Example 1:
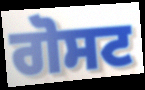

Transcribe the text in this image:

ਗੋਸਟ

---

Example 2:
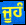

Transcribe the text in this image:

ਜੂਹੰ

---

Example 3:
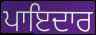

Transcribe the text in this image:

ਪਾਇਦਾਰ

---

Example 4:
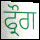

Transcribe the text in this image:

ਫ੍ਰੌਗ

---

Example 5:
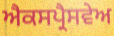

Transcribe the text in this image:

ਐਕਸਪ੍ਰੈਸਵੇਅ